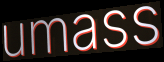
umass